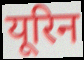
यूरिन